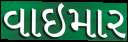
વાઇમાર